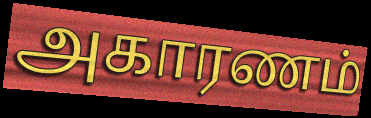
அகாரணம்